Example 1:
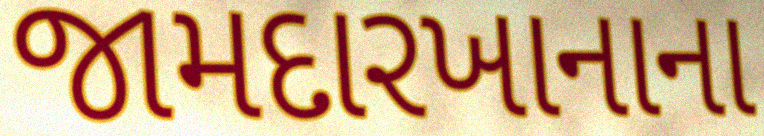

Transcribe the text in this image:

જામદારખાનાના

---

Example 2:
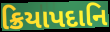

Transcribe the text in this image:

ક્રિયાપદાનિ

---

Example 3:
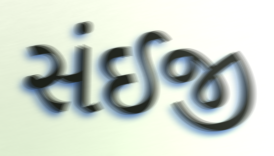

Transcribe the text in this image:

સંઈજી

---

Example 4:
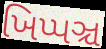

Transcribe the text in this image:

ખિપ્પઞ્ચ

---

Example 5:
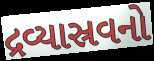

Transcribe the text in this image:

દ્રવ્યાસ્રવનો